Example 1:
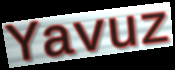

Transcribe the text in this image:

Yavuz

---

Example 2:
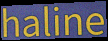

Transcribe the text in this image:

haline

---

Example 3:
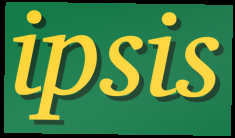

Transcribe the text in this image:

ipsis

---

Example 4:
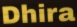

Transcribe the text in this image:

Dhira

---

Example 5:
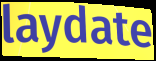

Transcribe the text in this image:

laydate